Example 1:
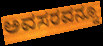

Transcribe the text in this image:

ಅವಸರವನ್ನೂ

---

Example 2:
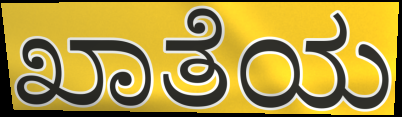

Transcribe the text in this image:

ಖಾತೆಯ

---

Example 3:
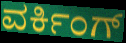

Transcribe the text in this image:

ವರ್ಕಿಂಗ್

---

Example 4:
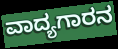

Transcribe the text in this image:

ವಾದ್ಯಗಾರನ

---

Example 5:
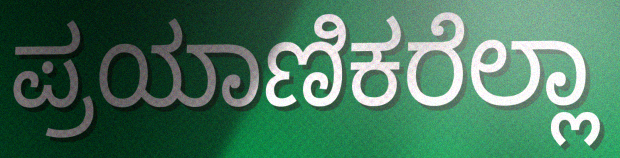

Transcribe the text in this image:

ಪ್ರಯಾಣಿಕರೆಲ್ಲಾ